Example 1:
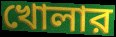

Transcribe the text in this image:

খোলার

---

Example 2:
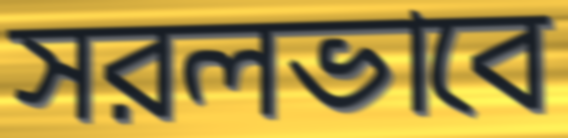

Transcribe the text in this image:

সরলভাবে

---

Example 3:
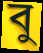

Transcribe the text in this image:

বু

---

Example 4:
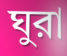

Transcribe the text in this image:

ঘুরা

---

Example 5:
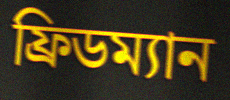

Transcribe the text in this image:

ফ্রিডম্যান